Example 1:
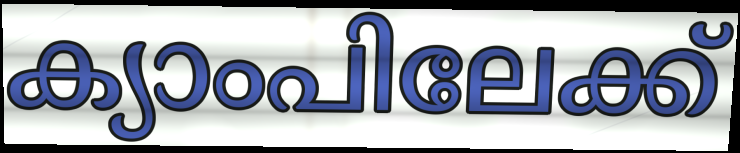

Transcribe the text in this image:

ക്യാംപിലേക്ക്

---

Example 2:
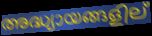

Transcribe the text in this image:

അദ്ധ്യായങ്ങളില്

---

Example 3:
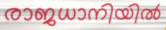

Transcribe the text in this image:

രാജധാനിയിൽ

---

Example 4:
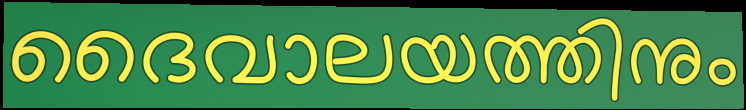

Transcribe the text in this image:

ദൈവാലയത്തിനും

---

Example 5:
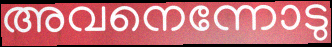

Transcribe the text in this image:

അവനെന്നോടു